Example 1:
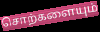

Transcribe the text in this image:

சொற்களையும்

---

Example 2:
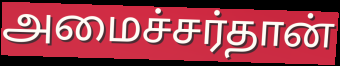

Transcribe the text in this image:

அமைச்சர்தான்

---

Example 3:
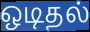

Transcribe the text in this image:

ஒடிதல்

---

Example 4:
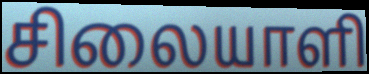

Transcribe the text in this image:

சிலையாளி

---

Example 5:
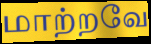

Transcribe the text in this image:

மாற்றவே